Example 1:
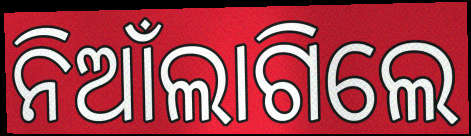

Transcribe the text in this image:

ନିଆଁଲାଗିଲେ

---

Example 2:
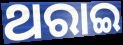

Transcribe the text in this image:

ଥରାଇ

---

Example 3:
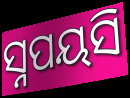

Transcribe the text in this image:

ସ୍ନପୟସି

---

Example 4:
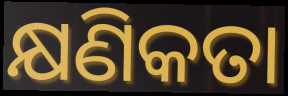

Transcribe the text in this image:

କ୍ଷଣିକତା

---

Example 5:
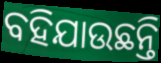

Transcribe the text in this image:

ବହିଯାଉଛନ୍ତି